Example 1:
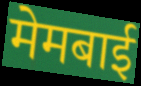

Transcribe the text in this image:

मेमबाई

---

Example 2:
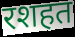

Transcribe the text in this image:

रशहत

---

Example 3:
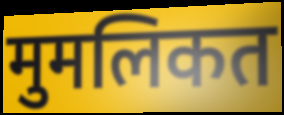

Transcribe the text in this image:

मुमलिकत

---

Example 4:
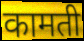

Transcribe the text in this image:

कामती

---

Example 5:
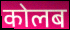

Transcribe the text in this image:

कोलब